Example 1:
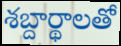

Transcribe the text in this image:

శబ్దార్థాలతో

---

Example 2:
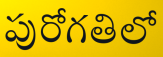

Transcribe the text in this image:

పురోగతిలో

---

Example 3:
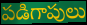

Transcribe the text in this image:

పడిగాపులు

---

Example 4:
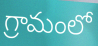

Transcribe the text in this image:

గ్రామంలో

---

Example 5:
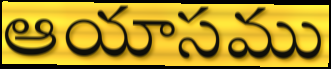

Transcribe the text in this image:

ఆయాసము